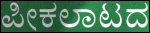
ಪೀಕಲಾಟದ